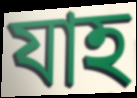
যাহ